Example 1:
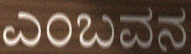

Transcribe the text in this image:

ಎಂಬವನ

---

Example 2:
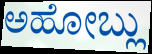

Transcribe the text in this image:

ಅಹೋಬ್ಲು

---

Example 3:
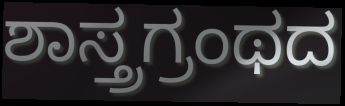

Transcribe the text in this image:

ಶಾಸ್ತ್ರಗ್ರಂಥದ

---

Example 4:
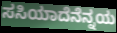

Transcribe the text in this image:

ಸಸಿಯಾದೆನೆನ್ನಯ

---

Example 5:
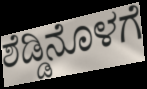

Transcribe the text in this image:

ಶೆಡ್ಡಿನೊಳಗೆ